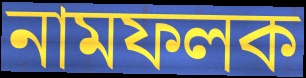
নামফলক